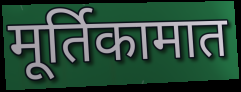
मूर्तिकामात